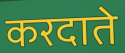
करदाते